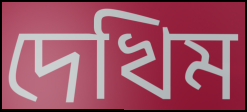
দেখিম